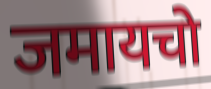
जमायचो